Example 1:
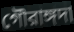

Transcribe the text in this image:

গৌরাঙ্গদা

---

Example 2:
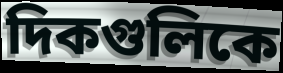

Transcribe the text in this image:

দিকগুলিকে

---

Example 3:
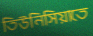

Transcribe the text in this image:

তিউনিসিয়াতে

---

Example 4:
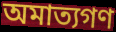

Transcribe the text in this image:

অমাত্যগণ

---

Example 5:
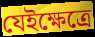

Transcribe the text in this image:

যেইক্ষেত্রে